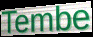
Tembe